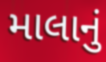
માલાનું